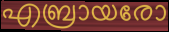
എബ്രായരോ